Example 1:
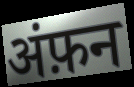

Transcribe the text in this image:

अंफ़न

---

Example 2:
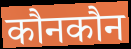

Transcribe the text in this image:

कौनकौन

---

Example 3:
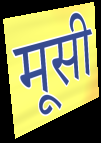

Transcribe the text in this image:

मूसी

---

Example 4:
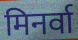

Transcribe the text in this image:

मिनर्वा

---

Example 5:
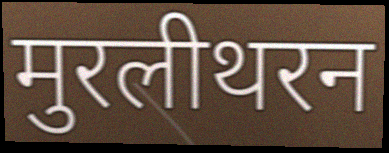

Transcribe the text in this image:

मुरलीथरन